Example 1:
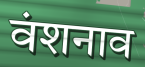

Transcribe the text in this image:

वंशनाव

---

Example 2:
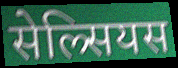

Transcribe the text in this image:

सेल्सियस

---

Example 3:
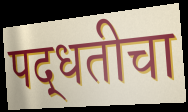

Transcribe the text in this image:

पद्धतीचा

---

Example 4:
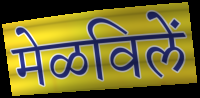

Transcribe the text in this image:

मेळविलें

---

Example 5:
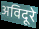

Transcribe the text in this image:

अविदूरे